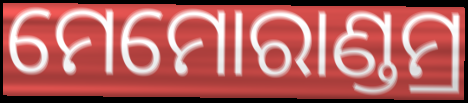
ମେମୋରାଣ୍ଡମ୍ର